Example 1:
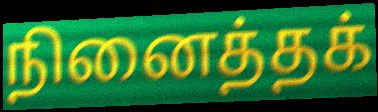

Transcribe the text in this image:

நினைத்தக்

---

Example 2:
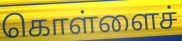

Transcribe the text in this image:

கொள்ளைச்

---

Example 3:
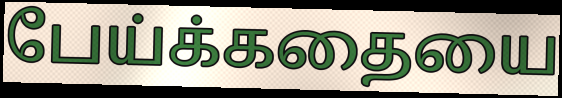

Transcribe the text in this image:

பேய்க்கதையை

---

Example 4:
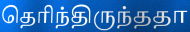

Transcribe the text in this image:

தெரிந்திருந்ததா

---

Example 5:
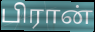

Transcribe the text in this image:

பிரான்